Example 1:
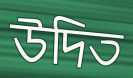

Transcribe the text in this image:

উদিত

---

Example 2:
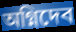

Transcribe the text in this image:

অগ্নিদেব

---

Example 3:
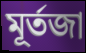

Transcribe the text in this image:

মূর্তজা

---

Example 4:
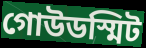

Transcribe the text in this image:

গোউডস্মিট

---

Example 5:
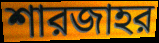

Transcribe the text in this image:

শারজাহর